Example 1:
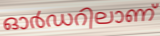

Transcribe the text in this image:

ഓർഡറിലാണ്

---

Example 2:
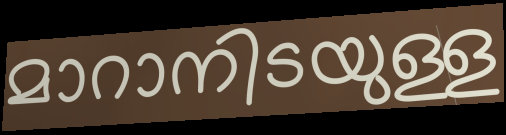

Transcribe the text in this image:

മാറാനിടയുള്ള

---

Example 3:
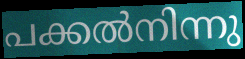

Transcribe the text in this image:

പക്കൽനിന്നു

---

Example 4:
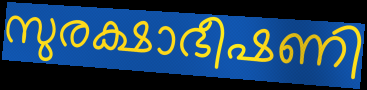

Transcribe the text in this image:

സുരക്ഷാഭീഷണി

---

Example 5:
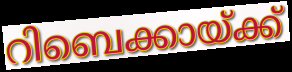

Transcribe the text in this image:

റിബെക്കായ്ക്ക്